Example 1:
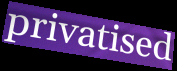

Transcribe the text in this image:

privatised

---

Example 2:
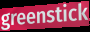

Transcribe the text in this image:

greenstick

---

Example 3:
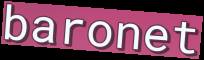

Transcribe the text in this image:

baronet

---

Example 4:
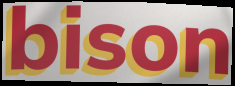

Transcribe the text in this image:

bison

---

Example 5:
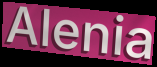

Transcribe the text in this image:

Alenia